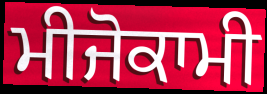
ਮੀਜੋਕਾਮੀ